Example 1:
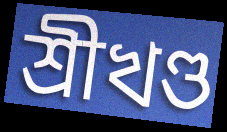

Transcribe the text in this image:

শ্রীখণ্ড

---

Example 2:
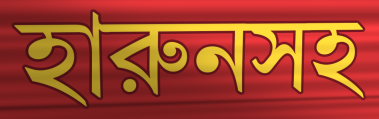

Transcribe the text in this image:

হারুনসহ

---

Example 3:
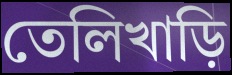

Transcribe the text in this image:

তেলিখাড়ি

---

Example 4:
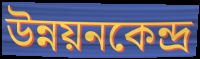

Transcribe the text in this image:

উন্নয়নকেন্দ্র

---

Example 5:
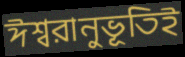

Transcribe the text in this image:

ঈশ্বরানুভূতিই